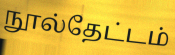
நூல்தேட்டம்